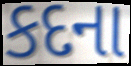
કદના